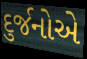
દુર્જનોએ